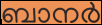
ബാനർ